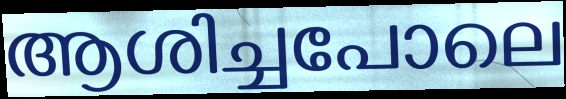
ആശിച്ചപോലെ